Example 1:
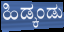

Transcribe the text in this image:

ಹಿಡ್ಕಂಡು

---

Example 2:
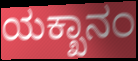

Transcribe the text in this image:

ಯಕ್ಖಾನಂ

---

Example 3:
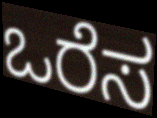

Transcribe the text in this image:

ಒರೆಸ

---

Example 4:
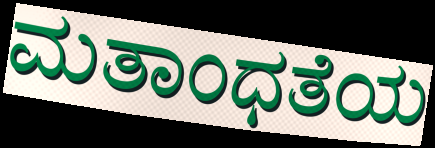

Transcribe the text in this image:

ಮತಾಂಧತೆಯ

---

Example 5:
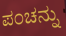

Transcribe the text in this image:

ಪಂಚನ್ನು